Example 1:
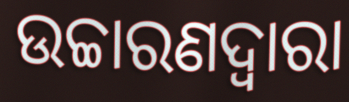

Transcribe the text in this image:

ଉଚ୍ଚାରଣଦ୍ଵାରା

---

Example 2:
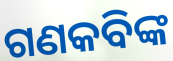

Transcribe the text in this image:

ଗଣକବିଙ୍କ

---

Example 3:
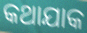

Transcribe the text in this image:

କଥାଯାକ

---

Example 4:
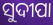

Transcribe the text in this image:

ସୁଦୀପା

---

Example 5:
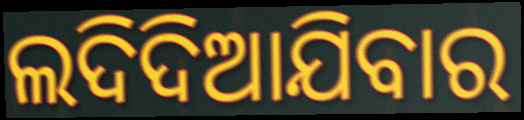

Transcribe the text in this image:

ଲଦିଦିଆଯିବାର